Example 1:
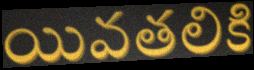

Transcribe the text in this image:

యివతలికి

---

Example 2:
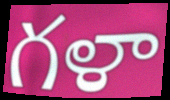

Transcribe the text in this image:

గళా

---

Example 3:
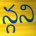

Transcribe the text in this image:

న్గని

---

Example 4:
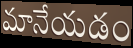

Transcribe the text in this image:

మానేయడం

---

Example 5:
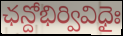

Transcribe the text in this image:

ఛన్దోభిర్వివిధైః